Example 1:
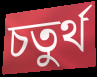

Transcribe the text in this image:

চতুৰ্থ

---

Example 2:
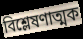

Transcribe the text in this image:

বিশ্লেষণাত্মক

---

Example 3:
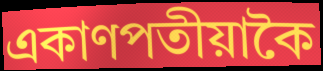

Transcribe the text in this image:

একাণপতীয়াকৈ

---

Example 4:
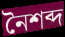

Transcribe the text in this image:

নৈশব্দ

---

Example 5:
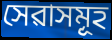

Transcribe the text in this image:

সেৱাসমূহ